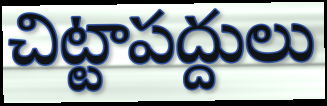
చిట్టాపద్దులు